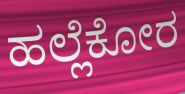
ಹಲ್ಲೆಕೋರ